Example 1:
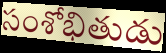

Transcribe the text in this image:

సంశోభితుడు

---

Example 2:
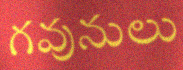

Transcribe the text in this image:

గవునులు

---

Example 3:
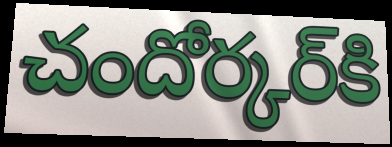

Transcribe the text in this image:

చందోర్కర్‌కి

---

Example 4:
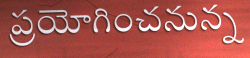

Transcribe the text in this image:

ప్రయోగించనున్న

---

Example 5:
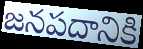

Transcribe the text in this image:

జనపదానికి